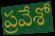
ప్రవేశో